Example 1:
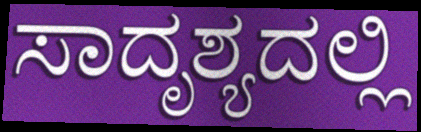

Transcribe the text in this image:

ಸಾದೃಶ್ಯದಲ್ಲಿ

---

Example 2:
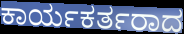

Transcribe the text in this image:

ಕಾರ್ಯಕರ್ತರಾದ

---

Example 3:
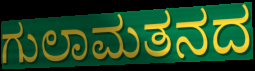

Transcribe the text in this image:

ಗುಲಾಮತನದ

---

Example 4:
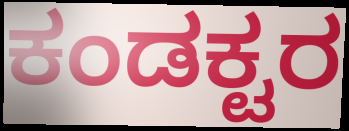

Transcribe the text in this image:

ಕಂಡಕ್ಟರ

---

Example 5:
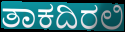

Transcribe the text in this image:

ತಾಕದಿರಲಿ